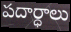
పదార్ధాలు